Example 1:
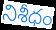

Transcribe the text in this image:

నిశీధం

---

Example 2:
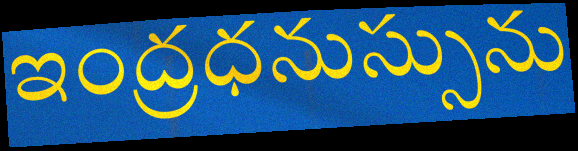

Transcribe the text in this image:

ఇంద్రధనుస్సును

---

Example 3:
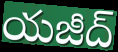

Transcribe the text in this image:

యజీద్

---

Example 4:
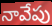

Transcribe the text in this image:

నావేపు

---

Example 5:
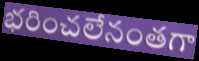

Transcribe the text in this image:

భరించలేనంతగా